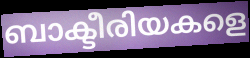
ബാക്ടീരിയകളെ